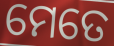
ମେତେ